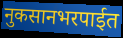
नुकसानभरपाईत